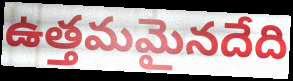
ఉత్తమమైనదేది